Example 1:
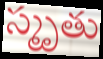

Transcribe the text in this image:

స్మృతు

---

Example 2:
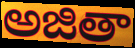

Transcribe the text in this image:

అజితా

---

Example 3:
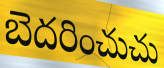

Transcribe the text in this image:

బెదరించుచు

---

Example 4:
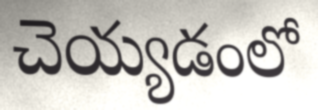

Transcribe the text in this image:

చెయ్యడంలో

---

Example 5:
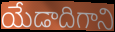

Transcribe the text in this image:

యేడాదిగాని